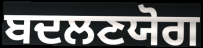
ਬਦਲਣਯੋਗ